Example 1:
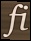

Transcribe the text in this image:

fi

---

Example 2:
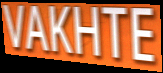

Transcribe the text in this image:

VAKHTE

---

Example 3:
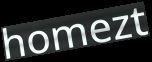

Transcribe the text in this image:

homezt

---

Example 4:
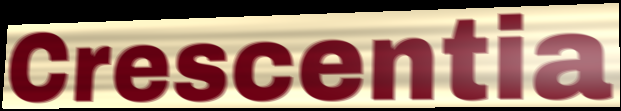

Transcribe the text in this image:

Crescentia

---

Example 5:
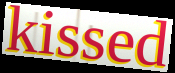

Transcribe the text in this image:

kissed